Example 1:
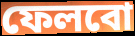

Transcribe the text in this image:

ফেলবো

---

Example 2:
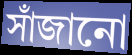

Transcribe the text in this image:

সাঁজানো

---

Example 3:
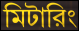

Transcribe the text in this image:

মিটারিং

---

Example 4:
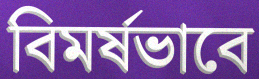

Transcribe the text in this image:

বিমর্ষভাবে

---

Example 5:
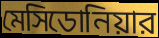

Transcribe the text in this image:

মেসিডোনিয়ার